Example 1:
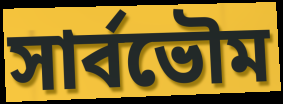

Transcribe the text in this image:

সার্বভৌম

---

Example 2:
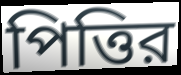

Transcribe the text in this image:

পিত্তির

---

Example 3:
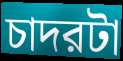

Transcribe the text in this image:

চাদরটা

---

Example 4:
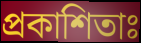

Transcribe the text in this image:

প্রকাশিতাঃ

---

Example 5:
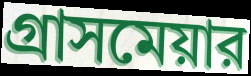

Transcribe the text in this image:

গ্রাসমেয়ার